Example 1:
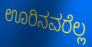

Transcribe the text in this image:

ಊರಿನವರೆಲ್ಲ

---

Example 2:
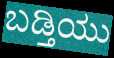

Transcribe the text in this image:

ಬಡ್ತಿಯು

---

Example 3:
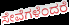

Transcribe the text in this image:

ಸೇವೆಗಳೆಂದರೆ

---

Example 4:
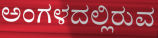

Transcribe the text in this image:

ಅಂಗಳದಲ್ಲಿರುವ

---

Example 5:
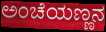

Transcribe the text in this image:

ಅಂಚೆಯಣ್ಣನ